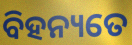
ବିହନ୍ୟତେ